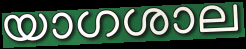
യാഗശാല